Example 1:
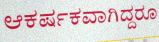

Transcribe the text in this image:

ಆಕರ್ಷಕವಾಗಿದ್ದರೂ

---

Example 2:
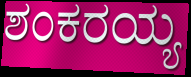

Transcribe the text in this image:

ಶಂಕರಯ್ಯ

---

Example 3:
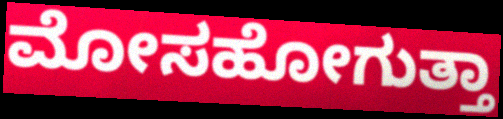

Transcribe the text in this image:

ಮೋಸಹೋಗುತ್ತಾ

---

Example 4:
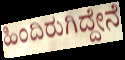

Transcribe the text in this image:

ಹಿಂದಿರುಗಿದ್ದೇನೆ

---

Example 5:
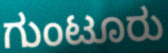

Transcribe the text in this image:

ಗುಂಟೂರು